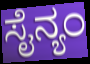
ಸೈನ್ಯಂ